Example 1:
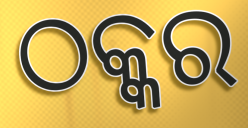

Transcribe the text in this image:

ଠକ୍କର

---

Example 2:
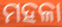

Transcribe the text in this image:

ମହଳା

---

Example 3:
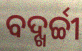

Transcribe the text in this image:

ବଦ୍ଖର୍ଚ୍ଚୀ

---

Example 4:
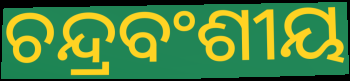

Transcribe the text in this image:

ଚନ୍ଦ୍ରବଂଶୀୟ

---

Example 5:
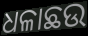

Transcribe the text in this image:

ଧଳାଛଉ